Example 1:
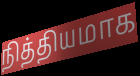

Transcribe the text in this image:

நித்தியமாக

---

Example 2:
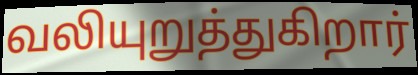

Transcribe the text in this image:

வலியுறுத்துகிறார்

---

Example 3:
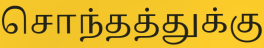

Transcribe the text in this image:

சொந்தத்துக்கு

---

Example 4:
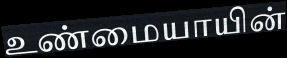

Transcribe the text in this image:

உண்மையாயின்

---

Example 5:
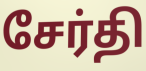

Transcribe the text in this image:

சேர்தி